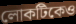
লোকটিকেও